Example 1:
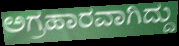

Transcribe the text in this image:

ಅಗ್ರಹಾರವಾಗಿದ್ದು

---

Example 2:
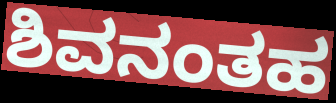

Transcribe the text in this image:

ಶಿವನಂತಹ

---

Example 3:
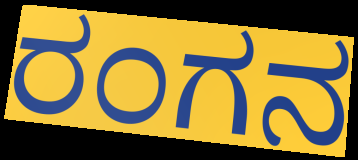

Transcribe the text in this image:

ರಂಗನ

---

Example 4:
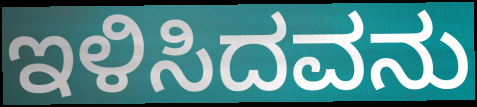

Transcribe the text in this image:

ಇಳಿಸಿದವನು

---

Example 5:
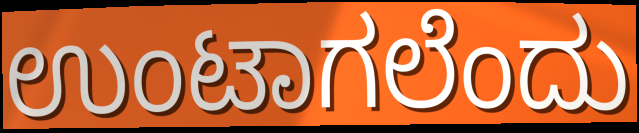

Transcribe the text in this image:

ಉಂಟಾಗಲೆಂದು